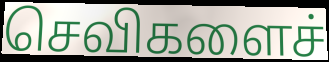
செவிகளைச்